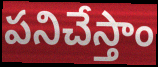
పనిచేస్తాం